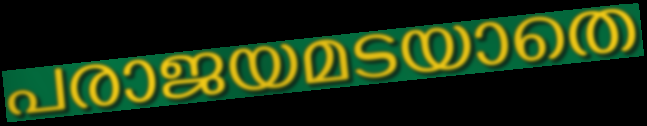
പരാജയമടയാതെ